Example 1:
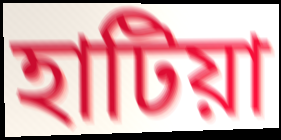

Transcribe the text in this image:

হাটিয়া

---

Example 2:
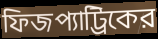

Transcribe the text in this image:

ফিজপ্যাট্রিকের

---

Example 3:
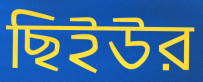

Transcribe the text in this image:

ছিইউর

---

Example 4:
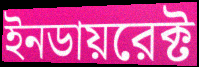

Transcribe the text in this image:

ইনডায়রেক্ট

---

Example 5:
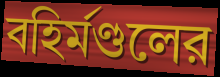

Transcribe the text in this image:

বহির্মণ্ডলের